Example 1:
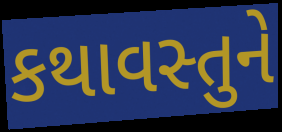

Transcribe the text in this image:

કથાવસ્તુને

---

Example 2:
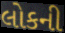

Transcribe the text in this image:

લોકની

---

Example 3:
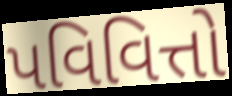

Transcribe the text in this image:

પવિવિત્તો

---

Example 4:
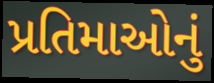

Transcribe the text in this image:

પ્રતિમાઓનું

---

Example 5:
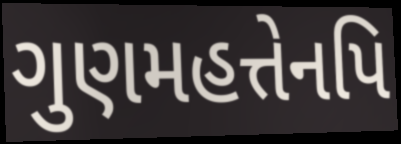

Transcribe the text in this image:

ગુણમહત્તેનપિ